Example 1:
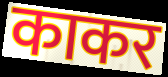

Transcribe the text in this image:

काकर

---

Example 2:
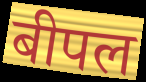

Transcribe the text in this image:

बीपल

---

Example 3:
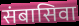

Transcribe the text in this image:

संबासिवा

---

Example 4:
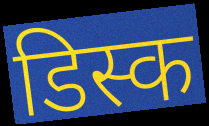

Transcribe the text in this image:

डिस्क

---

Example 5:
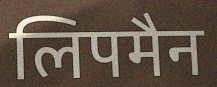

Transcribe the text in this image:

लिपमैन